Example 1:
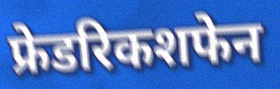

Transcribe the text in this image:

फ्रेडरिकशफेन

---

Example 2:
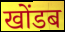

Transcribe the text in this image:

खोंडब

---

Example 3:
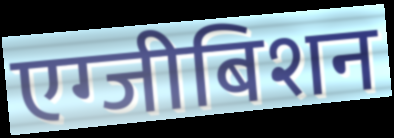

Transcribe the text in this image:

एग्जीबिशन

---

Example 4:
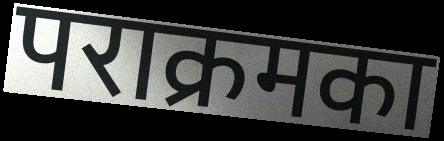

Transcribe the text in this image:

पराक्रमका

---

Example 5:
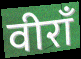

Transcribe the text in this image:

वीराँ